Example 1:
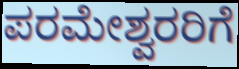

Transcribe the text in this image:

ಪರಮೇಶ್ವರರಿಗೆ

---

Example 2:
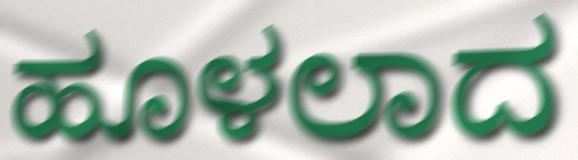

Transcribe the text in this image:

ಹೂಳಲಾದ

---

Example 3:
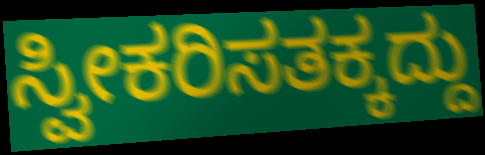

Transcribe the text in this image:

ಸ್ವೀಕರಿಸತಕ್ಕದ್ದು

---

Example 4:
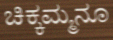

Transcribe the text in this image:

ಚಿಕ್ಕಮ್ಮನೂ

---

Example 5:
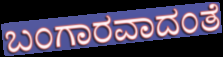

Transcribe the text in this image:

ಬಂಗಾರವಾದಂತೆ